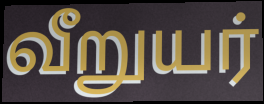
வீறுயர்